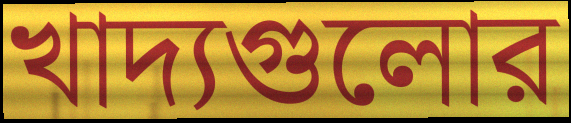
খাদ্যগুলোর